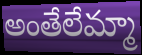
అంతేలేమ్మా